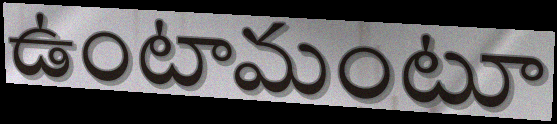
ఉంటామంటూ